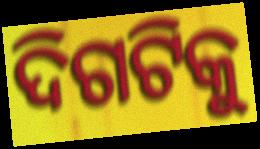
ଦିଗଟିକୁ